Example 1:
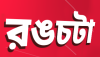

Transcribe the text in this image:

রঙচটা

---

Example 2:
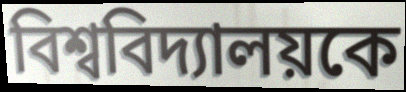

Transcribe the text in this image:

বিশ্ববিদ্যালয়কে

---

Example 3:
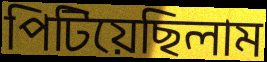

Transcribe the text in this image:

পিটিয়েছিলাম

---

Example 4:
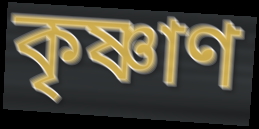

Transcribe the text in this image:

কৃষ্ণাণ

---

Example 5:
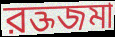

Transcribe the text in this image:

রক্তজমা